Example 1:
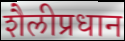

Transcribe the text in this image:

शैलीप्रधान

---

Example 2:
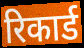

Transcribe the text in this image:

रिकार्ड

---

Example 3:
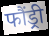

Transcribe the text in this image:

फौंड्री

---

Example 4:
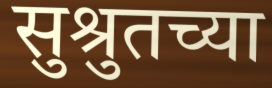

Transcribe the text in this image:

सुश्रुतच्या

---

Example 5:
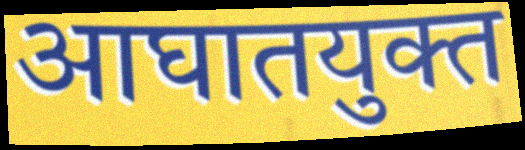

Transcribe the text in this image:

आघातयुक्त